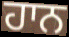
ਹਾਨ